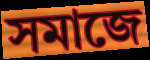
সমাজে